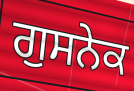
ਗੁਸਨੇਕ